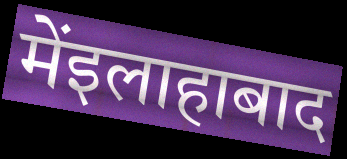
मेंइलाहाबाद